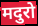
मदुरो